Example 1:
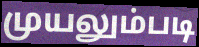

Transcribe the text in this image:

முயலும்படி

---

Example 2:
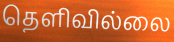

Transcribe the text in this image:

தெளிவில்லை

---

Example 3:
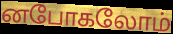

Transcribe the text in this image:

னபோகலோம்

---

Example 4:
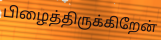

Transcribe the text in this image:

பிழைத்திருக்கிறேன்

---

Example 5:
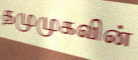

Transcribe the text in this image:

தமுமுகவின்